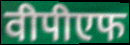
वीपीएफ